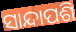
ସାନ୍ଦାପଶି